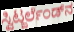
ಸ್ವಿಟ್ಜರ್ಲೆಂಡ್‌ನ